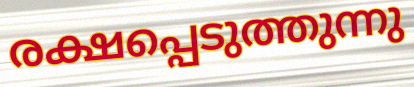
രക്ഷപ്പെടുത്തുന്നു